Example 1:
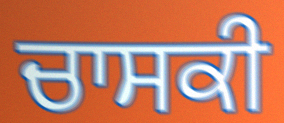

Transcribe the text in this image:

ਚਾਸਕੀ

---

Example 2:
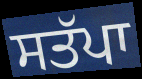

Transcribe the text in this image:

ਸਤੱਪਾ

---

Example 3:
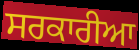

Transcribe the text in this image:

ਸਰਕਾਰੀਆ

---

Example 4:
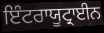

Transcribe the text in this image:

ਇੰਟਰਾਯੂਟ੍ਰਾਈਨ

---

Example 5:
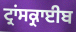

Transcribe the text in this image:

ਟ੍ਰਾਂਸਕ੍ਰਾਈਬ